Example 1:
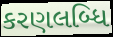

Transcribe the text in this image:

કરણલબ્ધિ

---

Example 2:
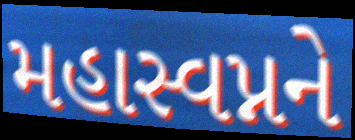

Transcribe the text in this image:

મહાસ્વપ્નને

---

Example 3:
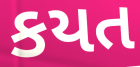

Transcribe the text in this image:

કયત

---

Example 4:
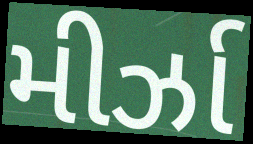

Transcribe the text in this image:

મીર્ઝા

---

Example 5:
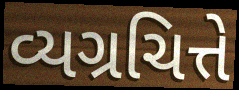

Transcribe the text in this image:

વ્યગ્રચિત્તે